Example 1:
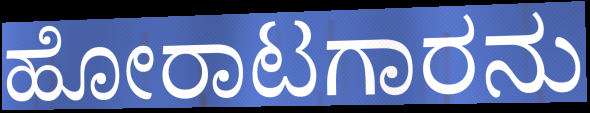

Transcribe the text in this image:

ಹೋರಾಟಗಾರನು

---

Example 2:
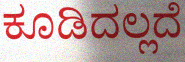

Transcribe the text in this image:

ಕೂಡಿದಲ್ಲದೆ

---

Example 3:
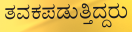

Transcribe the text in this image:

ತವಕಪಡುತ್ತಿದ್ದರು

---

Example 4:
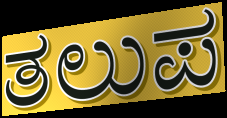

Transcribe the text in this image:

ತಲುಪ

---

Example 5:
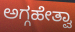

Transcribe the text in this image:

ಅಗ್ಗಹೇತ್ವಾ